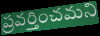
ప్రవర్తించమని